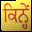
ਕਿਨ੍ਹੇਂ